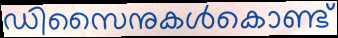
ഡിസൈനുകൾകൊണ്ട്